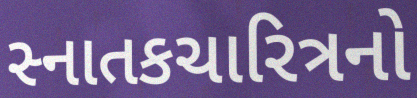
સ્નાતકચારિત્રનો